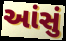
આંસું